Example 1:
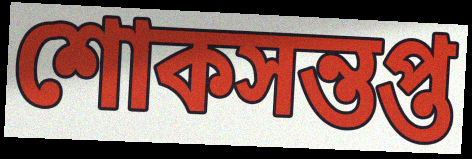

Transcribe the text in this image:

শোকসন্তপ্ত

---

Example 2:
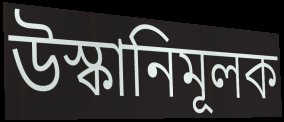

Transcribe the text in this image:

উস্কানিমূলক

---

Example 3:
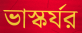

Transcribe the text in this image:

ভাস্কর্যর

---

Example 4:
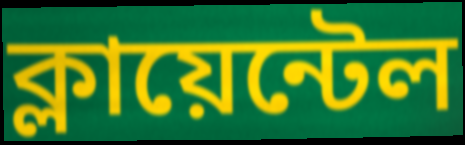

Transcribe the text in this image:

ক্লায়েন্টেল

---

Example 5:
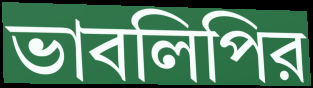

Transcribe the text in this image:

ভাবলিপির